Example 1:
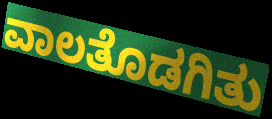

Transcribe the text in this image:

ವಾಲತೊಡಗಿತು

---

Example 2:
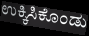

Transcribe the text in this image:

ಉಕ್ಕಿಸಿಕೊಂಡು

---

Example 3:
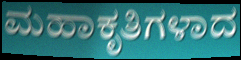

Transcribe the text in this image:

ಮಹಾಕೃತಿಗಳಾದ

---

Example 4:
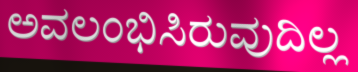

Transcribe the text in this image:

ಅವಲಂಭಿಸಿರುವುದಿಲ್ಲ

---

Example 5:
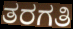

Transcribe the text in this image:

ತರಗತಿ